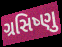
ગ્રસિષ્ણુ